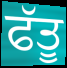
ਫੱਤੂ